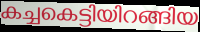
കച്ചകെട്ടിയിറങ്ങിയ